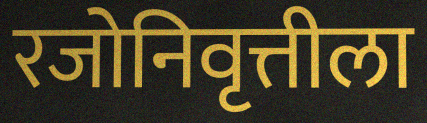
रजोनिवृत्तीला